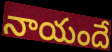
నాయందే